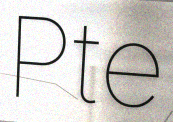
Pte